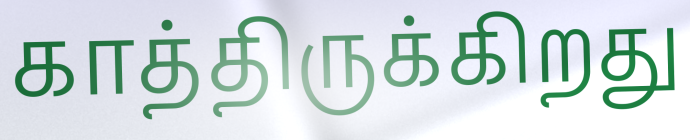
காத்திருக்கிறது